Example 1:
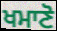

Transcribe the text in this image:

ਖਮਾਣੋ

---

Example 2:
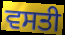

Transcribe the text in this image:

ਵਸਤੀ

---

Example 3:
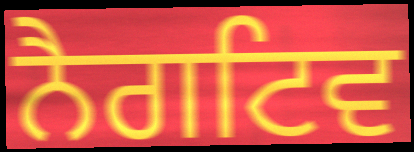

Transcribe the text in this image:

ਨੈਗਟਿਵ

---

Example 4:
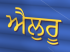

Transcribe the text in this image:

ਐਲੁਰੂ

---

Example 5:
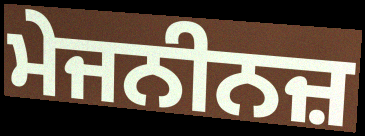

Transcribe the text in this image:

ਮੇਜਨੀਨਜ਼